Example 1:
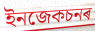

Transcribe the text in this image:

ইনজেকচনৰ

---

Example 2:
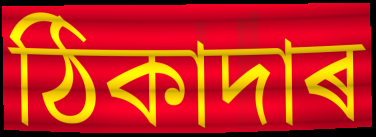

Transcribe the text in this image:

ঠিকাদাৰ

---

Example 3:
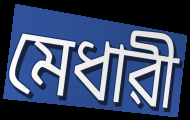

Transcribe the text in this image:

মেধাৱী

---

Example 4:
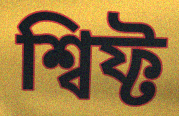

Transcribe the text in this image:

শ্বিফ্ট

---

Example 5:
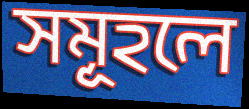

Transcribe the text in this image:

সমূহলে